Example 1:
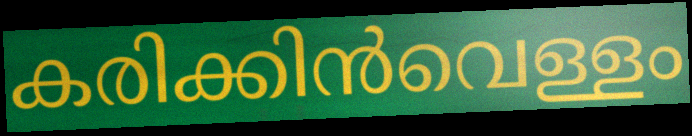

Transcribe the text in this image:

കരിക്കിൻവെള്ളം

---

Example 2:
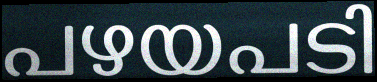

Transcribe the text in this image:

പഴയപടി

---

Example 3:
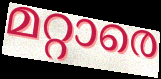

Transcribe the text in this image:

മറ്റാരെ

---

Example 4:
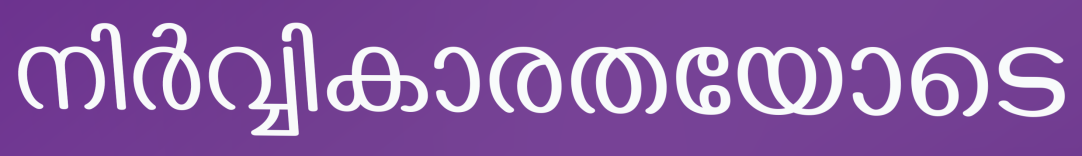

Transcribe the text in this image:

നിർവ്വികാരതയോടെ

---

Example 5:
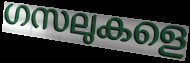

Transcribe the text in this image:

ഗസലുകളെ